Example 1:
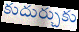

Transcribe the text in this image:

కుదుర్చుకు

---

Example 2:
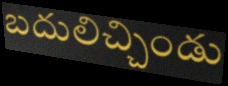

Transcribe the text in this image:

బదులిచ్చిండు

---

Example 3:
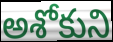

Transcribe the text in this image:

అశోకుని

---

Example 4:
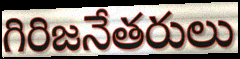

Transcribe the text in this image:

గిరిజనేతరులు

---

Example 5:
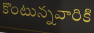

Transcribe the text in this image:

కొంటున్నవారికి